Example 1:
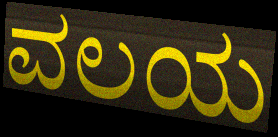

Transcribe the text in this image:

ವಲಯ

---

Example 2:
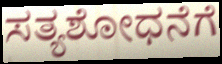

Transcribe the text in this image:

ಸತ್ಯಶೋಧನೆಗೆ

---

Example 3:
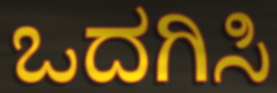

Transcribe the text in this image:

ಒದಗಿಸಿ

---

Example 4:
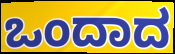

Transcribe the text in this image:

ಒಂದಾದ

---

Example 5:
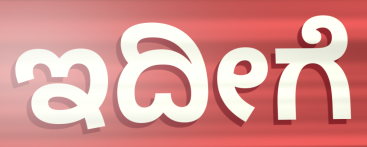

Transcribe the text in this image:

ಇದೀಗೆ